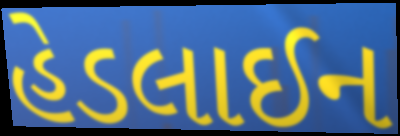
હેડલાઈન